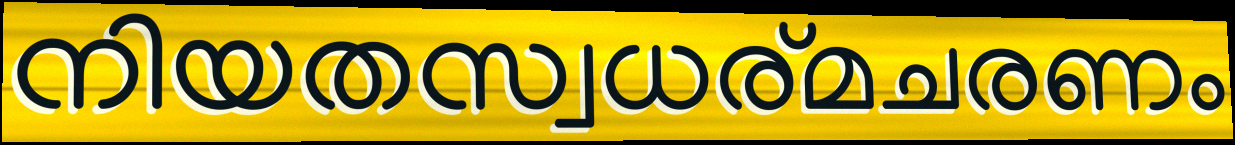
നിയതസ്വധര്മചരണം